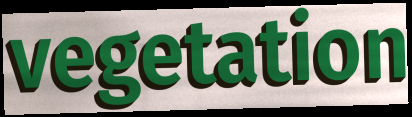
vegetation